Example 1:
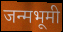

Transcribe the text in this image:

जन्मभूमी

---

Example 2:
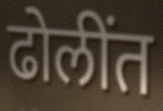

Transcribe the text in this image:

ढोलींत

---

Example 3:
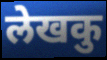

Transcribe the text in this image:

लेखकु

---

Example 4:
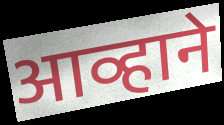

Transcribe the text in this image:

आव्हाने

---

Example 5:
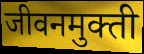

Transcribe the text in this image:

जीवनमुक्ती